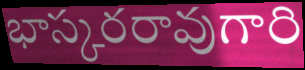
భాస్కరరావుగారి